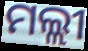
ମଲ୍ଲୀ